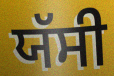
ਯੱਸੀ